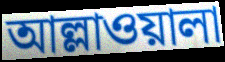
আল্লাওয়ালা